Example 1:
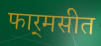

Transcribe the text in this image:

फार्मसीत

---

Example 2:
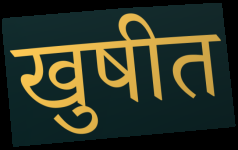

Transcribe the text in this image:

खुषीत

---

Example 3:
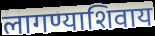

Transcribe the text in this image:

लागण्याशिवाय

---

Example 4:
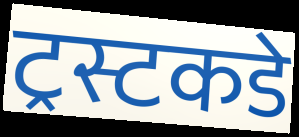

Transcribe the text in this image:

ट्रस्टकडे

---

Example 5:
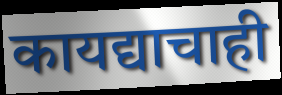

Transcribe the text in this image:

कायद्याचाही